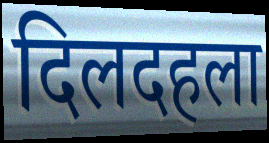
दिलदहला